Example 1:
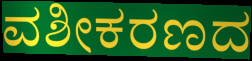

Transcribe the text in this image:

ವಶೀಕರಣದ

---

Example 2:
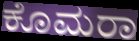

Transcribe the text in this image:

ಕೊಮರಾ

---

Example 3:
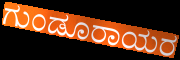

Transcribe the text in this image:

ಗುಂಡೂರಾಯರ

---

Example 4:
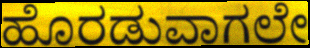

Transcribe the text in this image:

ಹೊರಡುವಾಗಲೇ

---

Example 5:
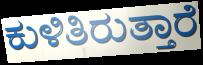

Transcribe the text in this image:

ಕುಳಿತಿರುತ್ತಾರೆ